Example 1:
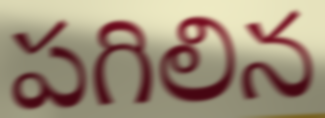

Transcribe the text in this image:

పగిలిన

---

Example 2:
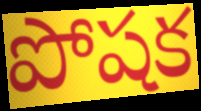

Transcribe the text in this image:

పోషక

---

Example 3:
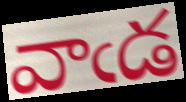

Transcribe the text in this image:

వాఁడ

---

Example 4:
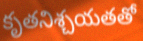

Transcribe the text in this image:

కృతనిశ్చయతతో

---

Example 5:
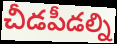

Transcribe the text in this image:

చీడపీడల్ని